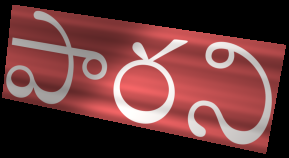
పారని